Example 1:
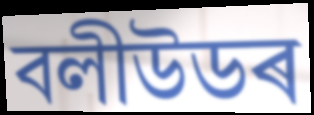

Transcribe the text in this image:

বলীউডৰ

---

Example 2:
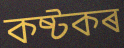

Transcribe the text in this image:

কষ্টকৰ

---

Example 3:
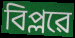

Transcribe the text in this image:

বিপ্লৱে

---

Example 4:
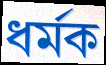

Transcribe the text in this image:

ধৰ্মক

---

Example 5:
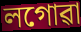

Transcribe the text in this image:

লগোৱা